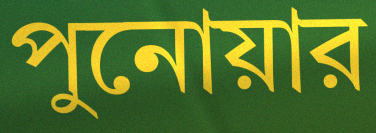
পুনোয়ার